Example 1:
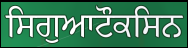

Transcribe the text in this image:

ਸਿਗੁਆਟੌਕਸਿਨ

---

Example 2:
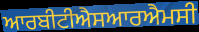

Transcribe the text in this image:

ਆਰਬੀਟੀਐਸਆਰਐਮਸੀ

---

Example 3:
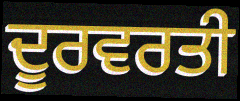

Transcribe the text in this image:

ਦੂਰਵਰਤੀ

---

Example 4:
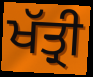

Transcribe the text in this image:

ਖੱਤ੍ਰੀ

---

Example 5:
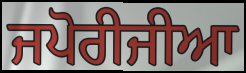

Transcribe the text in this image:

ਜਪੋਰੀਜੀਆ